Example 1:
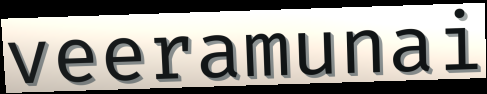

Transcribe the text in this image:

veeramunai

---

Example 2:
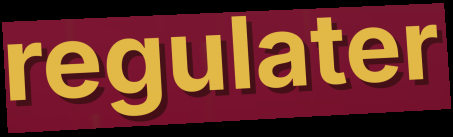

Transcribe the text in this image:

regulater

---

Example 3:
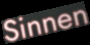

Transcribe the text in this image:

Sinnen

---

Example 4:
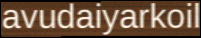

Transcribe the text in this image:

avudaiyarkoil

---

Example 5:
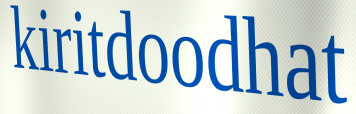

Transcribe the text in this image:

kiritdoodhat